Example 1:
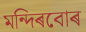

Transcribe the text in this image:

মন্দিৰবোৰ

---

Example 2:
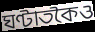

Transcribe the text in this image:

ঘণ্টাতকৈও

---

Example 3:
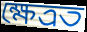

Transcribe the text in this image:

ক্ষেত্ৰত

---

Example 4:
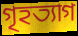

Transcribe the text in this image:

গৃহত্যাগ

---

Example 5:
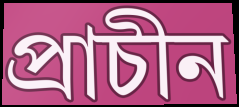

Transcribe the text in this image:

প্ৰাচীন